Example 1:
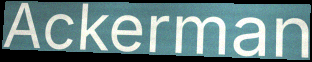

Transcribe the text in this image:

Ackerman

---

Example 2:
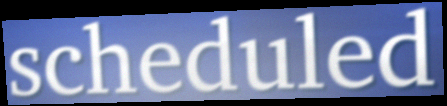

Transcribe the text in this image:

scheduled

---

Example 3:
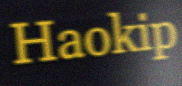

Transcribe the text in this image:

Haokip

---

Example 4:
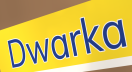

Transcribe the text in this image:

Dwarka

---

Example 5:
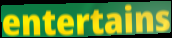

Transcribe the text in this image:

entertains